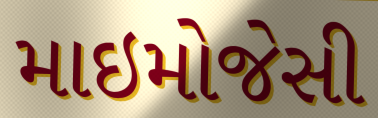
માઇમોજેસી